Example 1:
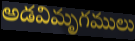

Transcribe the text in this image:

అడవిమృగములు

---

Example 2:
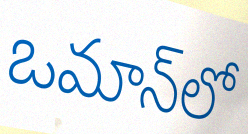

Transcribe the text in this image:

ఒమాన్‌లో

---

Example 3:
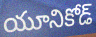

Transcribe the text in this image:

యూనికోడ్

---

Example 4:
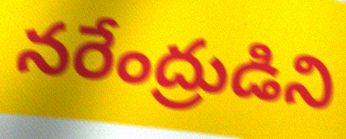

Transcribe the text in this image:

నరేంద్రుడిని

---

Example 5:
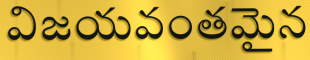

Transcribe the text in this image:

విజయవంతమైన